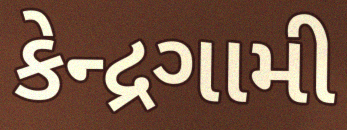
કેન્દ્રગામી